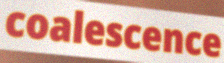
coalescence